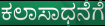
ಕಲಾಸಾಧನೆಗೆ